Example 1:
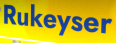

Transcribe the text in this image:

Rukeyser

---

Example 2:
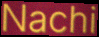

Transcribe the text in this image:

Nachi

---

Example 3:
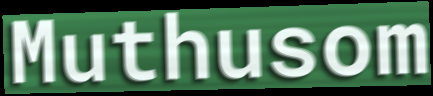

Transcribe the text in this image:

Muthusom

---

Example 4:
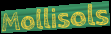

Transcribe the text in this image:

Mollisols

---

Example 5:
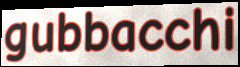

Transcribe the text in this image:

gubbacchi